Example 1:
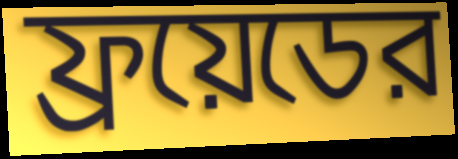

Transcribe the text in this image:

ফ্রয়েডের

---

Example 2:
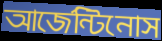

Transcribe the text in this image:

আর্জেন্টিনোস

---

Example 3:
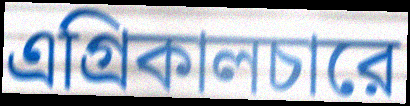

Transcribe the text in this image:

এগ্রিকালচারে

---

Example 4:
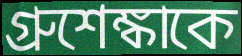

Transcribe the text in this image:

গ্রুশেঙ্কাকে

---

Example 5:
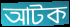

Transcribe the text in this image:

আটক